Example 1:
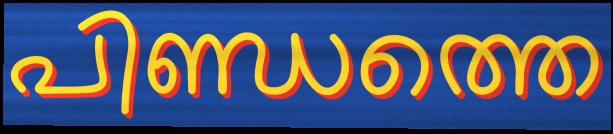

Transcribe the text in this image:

പിണ്ഡത്തെ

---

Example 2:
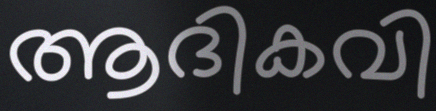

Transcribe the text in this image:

ആദികവി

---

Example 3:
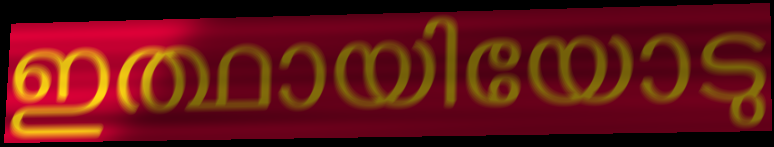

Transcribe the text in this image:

ഇത്ഥായിയോടു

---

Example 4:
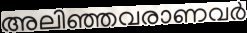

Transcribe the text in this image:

അലിഞ്ഞവരാണവർ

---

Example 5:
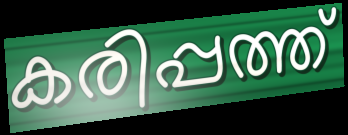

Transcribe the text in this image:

കരിപ്പത്ത്